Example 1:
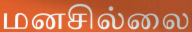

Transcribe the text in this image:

மனசில்லை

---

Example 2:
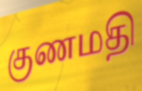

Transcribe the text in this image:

குணமதி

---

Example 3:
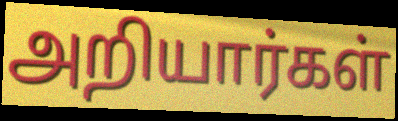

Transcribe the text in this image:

அறியார்கள்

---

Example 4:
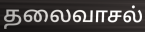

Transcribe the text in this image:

தலைவாசல்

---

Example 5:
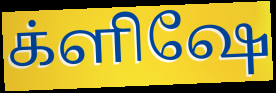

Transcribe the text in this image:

க்ளிஷே